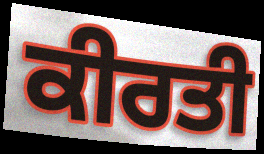
ਕੀਰਤੀ